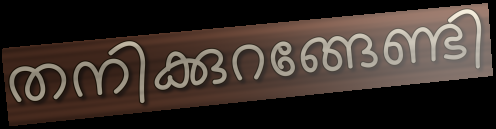
തനിക്കുറങ്ങേണ്ടി